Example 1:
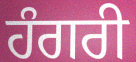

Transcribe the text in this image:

ਹੰਗਰੀ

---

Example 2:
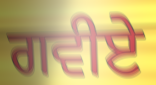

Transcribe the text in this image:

ਗਵੀਏ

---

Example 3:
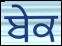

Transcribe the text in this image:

ਬੇਕ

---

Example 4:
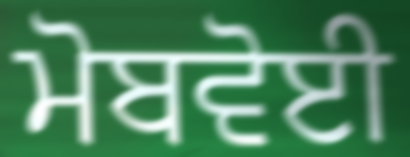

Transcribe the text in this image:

ਮੋਬਵੋਈ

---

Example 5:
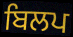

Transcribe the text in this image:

ਬਿਲਪ